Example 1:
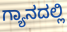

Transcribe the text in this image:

ಗ್ಯಾನದಲ್ಲಿ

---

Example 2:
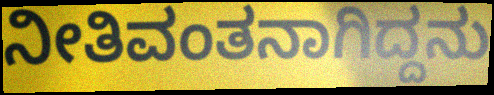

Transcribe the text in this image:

ನೀತಿವಂತನಾಗಿದ್ದನು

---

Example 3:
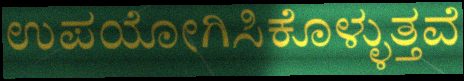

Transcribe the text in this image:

ಉಪಯೋಗಿಸಿಕೊಳ್ಳುತ್ತವೆ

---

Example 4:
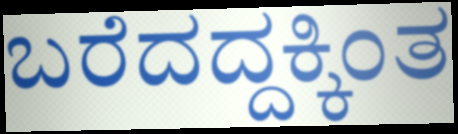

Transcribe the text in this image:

ಬರೆದದ್ದಕ್ಕಿಂತ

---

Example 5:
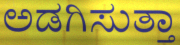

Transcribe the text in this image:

ಅಡಗಿಸುತ್ತಾ